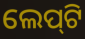
ଲେପ୍‍ଟି